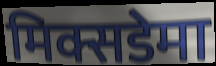
मिक्सडेमा